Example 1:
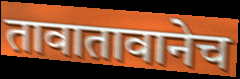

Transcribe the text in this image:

तावातावानेच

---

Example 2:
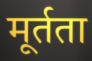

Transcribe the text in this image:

मूर्तता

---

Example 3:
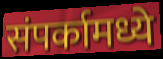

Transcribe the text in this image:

संपर्कामध्ये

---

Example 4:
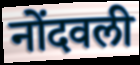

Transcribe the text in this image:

नोंदवली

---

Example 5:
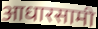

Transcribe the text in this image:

आधारसामी